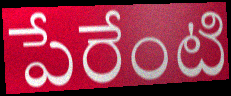
పేరేంటి